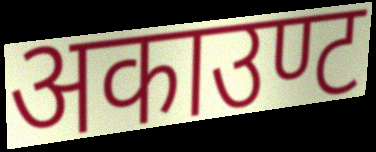
अकाउण्ट